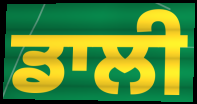
ਡਾਲੀ